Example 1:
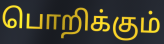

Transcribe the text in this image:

பொறிக்கும்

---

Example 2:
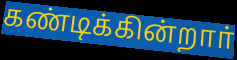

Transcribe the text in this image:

கண்டிக்கின்றார்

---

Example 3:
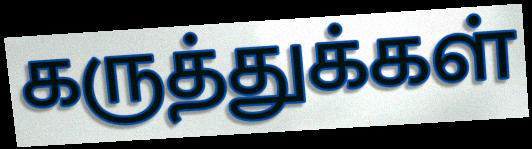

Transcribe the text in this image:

கருத்துக்கள்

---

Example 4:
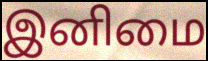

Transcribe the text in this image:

இனிமை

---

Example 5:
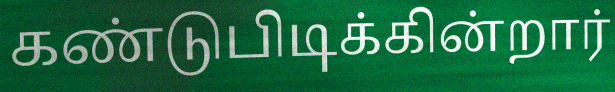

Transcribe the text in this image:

கண்டுபிடிக்கின்றார்